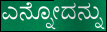
ಎನ್ನೋದನ್ನು